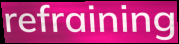
refraining